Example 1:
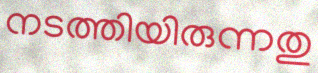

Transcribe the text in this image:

നടത്തിയിരുന്നതു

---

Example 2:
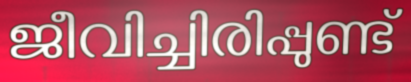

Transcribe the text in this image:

ജീവിച്ചിരിപ്പുണ്ട്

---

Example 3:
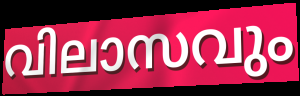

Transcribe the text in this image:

വിലാസവും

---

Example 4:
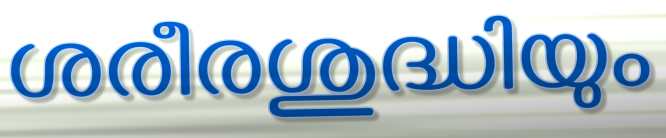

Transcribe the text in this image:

ശരീരശുദ്ധിയും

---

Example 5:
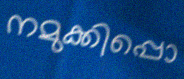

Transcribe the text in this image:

നമുക്കിപ്പൊ